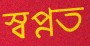
স্বপ্নত